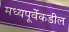
मध्यपूर्वेकडील